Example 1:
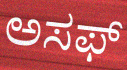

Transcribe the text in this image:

ಅಸಫ್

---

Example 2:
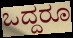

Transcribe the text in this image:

ಒದ್ದರೂ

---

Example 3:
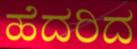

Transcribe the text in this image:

ಹೆದರಿದ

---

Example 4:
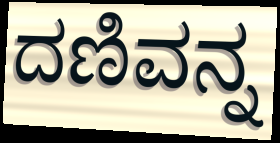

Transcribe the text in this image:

ದಣಿವನ್ನ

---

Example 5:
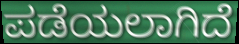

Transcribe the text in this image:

ಪಡೆಯಲಾಗಿದೆ